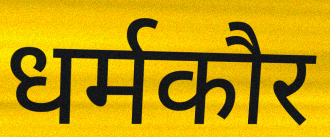
धर्मकौर